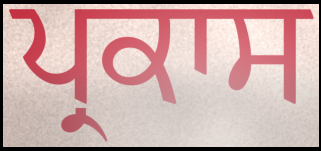
ਪ੍ਰਕਾਸ